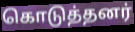
கொடுத்தனர்